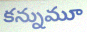
కన్నుమూ